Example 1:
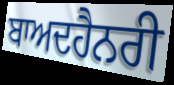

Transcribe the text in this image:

ਬਾਅਦਹੈਨਰੀ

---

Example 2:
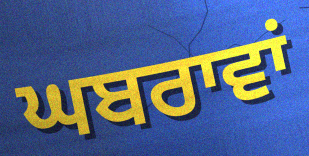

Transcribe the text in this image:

ਘਬਰਾਵਾਂ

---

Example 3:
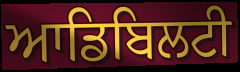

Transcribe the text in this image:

ਆਡਿਬਿਲਟੀ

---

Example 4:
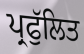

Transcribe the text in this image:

ਪ੍ਰਫੁੱਲਿਤ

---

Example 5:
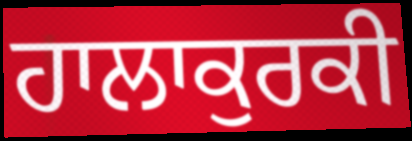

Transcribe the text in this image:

ਹਾਲਾਕੁਰਕੀ